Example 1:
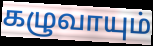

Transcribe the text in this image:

கழுவாயும்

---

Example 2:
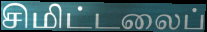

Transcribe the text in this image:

சிமிட்டலைப்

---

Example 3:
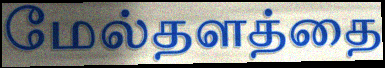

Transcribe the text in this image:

மேல்தளத்தை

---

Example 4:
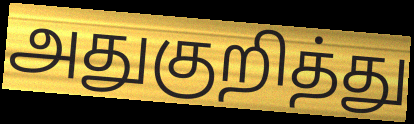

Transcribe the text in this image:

அதுகுறித்து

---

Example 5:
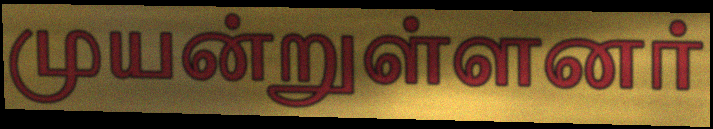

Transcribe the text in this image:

முயன்றுள்ளனர்